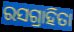
ରସଗ୍ରାହିତା